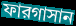
ফারগাসান